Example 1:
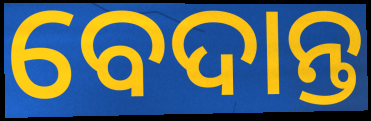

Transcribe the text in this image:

ବେଦାନ୍ତ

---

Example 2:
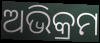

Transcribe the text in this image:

ଅଭିକ୍ରମ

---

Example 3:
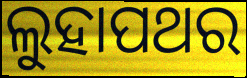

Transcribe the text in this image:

ଲୁହାପଥର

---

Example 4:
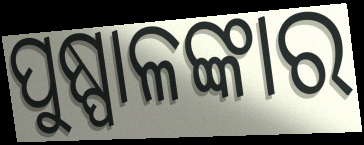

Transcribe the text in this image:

ପୁଷ୍ପାଳଙ୍କାର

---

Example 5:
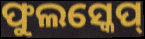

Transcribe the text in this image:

ଫୁଲସ୍କେପ୍